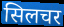
सिलचर